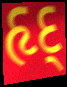
હૃદ્